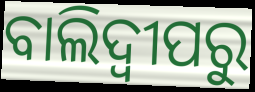
ବାଲିଦ୍ୱୀପରୁ